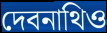
দেবনাথিও